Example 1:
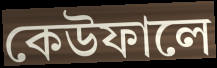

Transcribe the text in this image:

কেউফালে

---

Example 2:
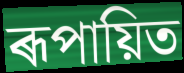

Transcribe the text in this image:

ৰূপায়িত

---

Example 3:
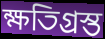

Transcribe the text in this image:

ক্ষতিগ্ৰস্ত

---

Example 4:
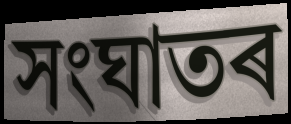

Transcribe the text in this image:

সংঘাতৰ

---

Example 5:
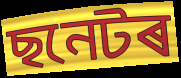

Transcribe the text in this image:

ছনেটৰ